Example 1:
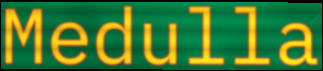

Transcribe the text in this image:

Medulla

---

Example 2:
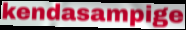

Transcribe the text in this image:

kendasampige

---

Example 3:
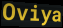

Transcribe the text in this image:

Oviya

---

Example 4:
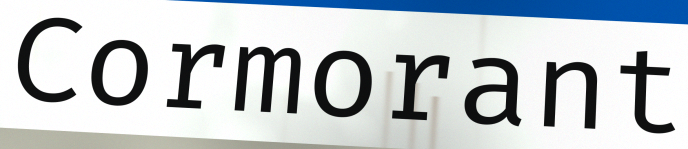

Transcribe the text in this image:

Cormorant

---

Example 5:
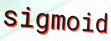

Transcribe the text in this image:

sigmoid